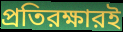
প্রতিরক্ষারই